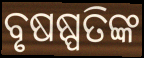
ବୃଷଷ୍ପତିଙ୍କ